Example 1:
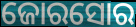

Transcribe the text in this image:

ଜୋରସୋର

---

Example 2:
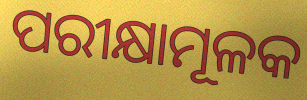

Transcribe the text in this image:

ପରୀକ୍ଷାମୂଳକ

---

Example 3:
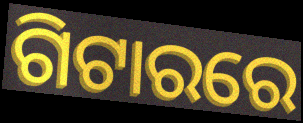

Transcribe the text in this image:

ଗିଟାରରେ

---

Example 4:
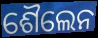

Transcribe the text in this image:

ଶୈଲେନ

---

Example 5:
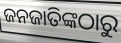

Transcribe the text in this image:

ଜନଜାତିଙ୍କଠାରୁ